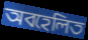
অবহেলিত